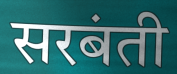
सरबंती